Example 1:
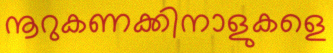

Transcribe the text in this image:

നൂറുകണക്കിനാളുകളെ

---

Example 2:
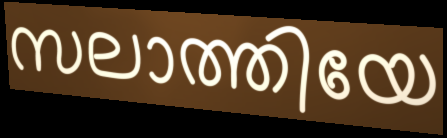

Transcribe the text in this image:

സലാത്തിയേ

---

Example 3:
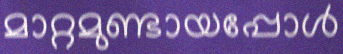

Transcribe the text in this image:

മാറ്റമുണ്ടായപ്പോൾ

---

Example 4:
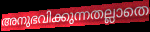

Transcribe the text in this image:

അനുഭവിക്കുന്നതല്ലാതെ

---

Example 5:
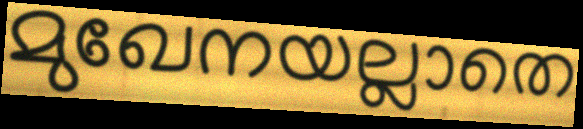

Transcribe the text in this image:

മുഖേനയല്ലാതെ